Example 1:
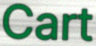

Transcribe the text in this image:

Cart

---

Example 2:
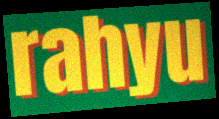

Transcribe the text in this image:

rahyu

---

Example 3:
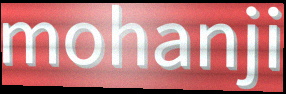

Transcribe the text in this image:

mohanji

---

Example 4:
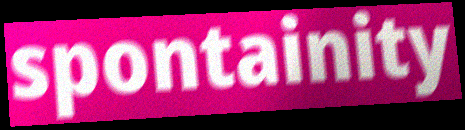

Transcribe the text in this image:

spontainity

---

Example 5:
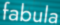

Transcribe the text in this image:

fabula